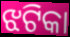
ଝଟିକା